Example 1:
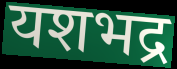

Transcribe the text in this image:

यशभद्र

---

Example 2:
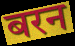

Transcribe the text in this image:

बरन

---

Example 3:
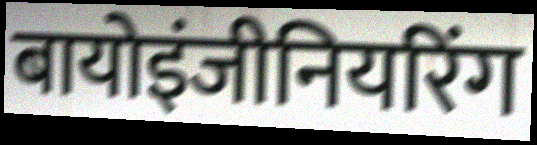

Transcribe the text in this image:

बायोइंजीनियरिंग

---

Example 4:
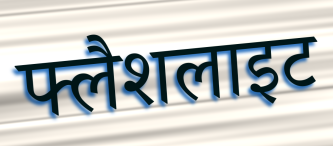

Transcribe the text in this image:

फ्लैशलाइट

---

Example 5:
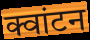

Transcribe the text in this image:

क्वांटन